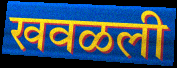
खवळली